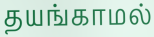
தயங்காமல்